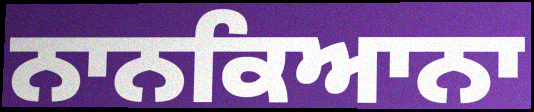
ਨਾਨਕਿਆਨਾ